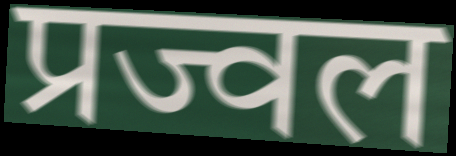
प्रज्वल